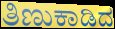
ತಿಣುಕಾಡಿದ